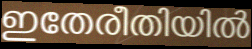
ഇതേരീതിയിൽ